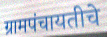
ग्रामपंचायतीचे